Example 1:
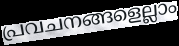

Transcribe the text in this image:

പ്രവചനങ്ങളെല്ലാം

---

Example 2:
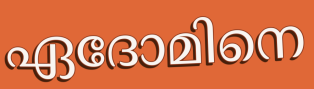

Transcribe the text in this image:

ഏദോമിനെ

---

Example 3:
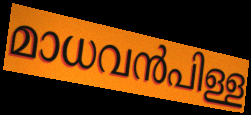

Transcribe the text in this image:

മാധവൻപിള്ള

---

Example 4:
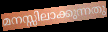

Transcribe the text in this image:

മനസ്സിലാക്കുന്നതു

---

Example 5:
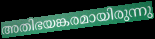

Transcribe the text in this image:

അതിഭയങ്കരമായിരുന്നു